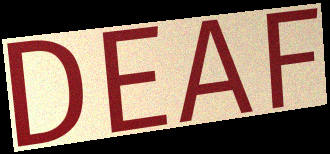
DEAF